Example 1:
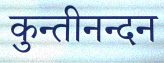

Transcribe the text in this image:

कुन्तीनन्दन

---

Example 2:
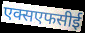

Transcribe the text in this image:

एक्सएफसीई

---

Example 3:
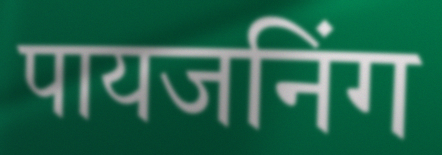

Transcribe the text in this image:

पायजनिंग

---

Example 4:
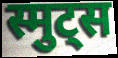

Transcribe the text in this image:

स्मुट्स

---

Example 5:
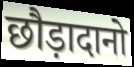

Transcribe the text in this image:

छौड़ादानो